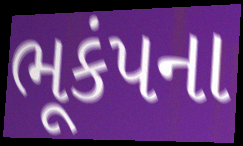
ભૂકંપના